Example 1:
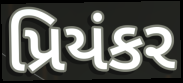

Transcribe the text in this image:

પ્રિયંકર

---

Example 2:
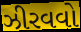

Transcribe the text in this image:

ઝીરવવો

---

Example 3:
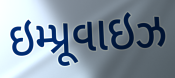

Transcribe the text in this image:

ઇમ્પ્રૂવાઇઝ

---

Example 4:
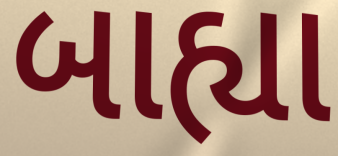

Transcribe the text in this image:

બાહ્યા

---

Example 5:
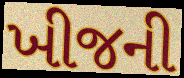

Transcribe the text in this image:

ખીજની